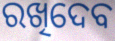
ରଖିଦେବ